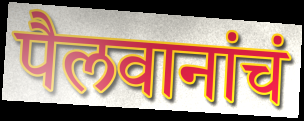
पैलवानांचं